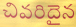
చివరిదైన